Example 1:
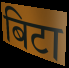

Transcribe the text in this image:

बिटा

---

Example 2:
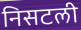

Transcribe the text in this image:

निसटली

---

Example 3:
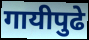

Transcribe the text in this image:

गायीपुढे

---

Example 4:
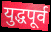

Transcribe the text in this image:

युद्धपूर्व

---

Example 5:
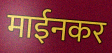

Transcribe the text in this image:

माईनकर